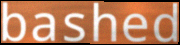
bashed